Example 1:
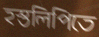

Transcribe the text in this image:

হস্তলিপিতে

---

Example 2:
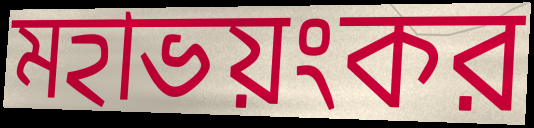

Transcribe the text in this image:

মহাভয়ংকর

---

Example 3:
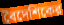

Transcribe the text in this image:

বৈদেশিকের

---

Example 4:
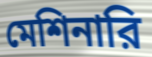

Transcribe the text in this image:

মেশিনারি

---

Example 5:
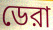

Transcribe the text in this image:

ডেরা